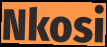
Nkosi